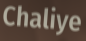
Chaliye